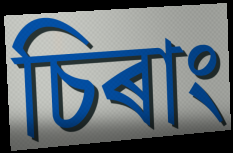
চিৰাং